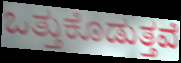
ಒತ್ತುಕೊಡುತ್ತವೆ